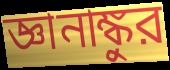
জ্ঞানাঙ্কুর